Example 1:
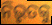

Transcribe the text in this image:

ନିଭୃତକୁ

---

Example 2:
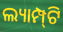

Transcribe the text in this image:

ଲ୍ୟାମ୍ପ୍‍ଟି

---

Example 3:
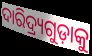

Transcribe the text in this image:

ଦାରିଦ୍ର୍ୟଗୁଡ଼ାକୁ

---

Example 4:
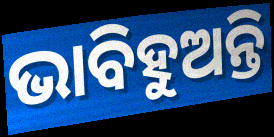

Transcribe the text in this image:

ଭାବିହୁଅନ୍ତି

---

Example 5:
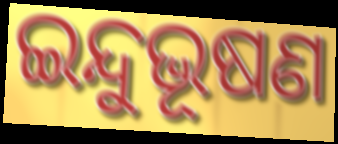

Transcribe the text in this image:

ଇନ୍ଦୁଭୂଷଣ